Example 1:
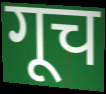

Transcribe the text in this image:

गूच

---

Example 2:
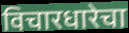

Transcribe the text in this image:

विचारधारेचा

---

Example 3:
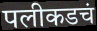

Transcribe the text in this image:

पलीकडचं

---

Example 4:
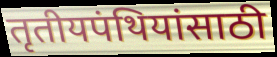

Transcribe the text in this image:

तृतीयपंथियांसाठी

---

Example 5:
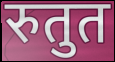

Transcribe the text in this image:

रुतुत